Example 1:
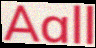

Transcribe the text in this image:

Aall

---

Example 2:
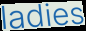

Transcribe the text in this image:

ladies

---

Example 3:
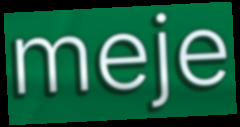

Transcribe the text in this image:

meje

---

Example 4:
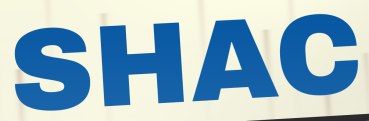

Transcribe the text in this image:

SHAC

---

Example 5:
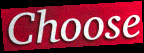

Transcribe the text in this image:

Choose